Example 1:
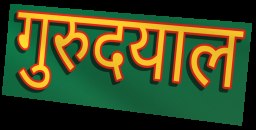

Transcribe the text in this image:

गुरुदयाल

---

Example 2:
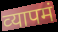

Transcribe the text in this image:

व्‍यापमं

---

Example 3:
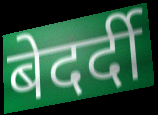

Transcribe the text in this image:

बेदर्दी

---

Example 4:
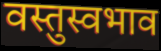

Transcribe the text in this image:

वस्तुस्वभाव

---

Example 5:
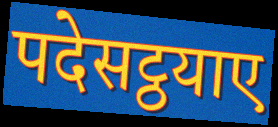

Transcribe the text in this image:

पदेसट्ठयाए